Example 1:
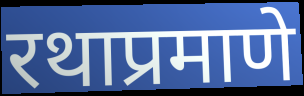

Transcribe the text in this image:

रथाप्रमाणे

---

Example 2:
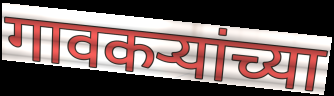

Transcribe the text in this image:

गावकऱ्यांच्या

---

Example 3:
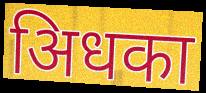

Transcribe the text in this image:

अिधका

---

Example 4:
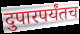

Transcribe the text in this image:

दुपारपर्यंतच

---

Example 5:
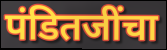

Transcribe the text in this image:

पंडितजींचा